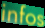
infos